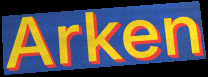
Arken